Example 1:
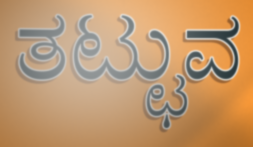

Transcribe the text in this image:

ತಟ್ಟುವ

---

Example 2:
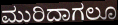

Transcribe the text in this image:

ಮುರಿದಾಗಲೂ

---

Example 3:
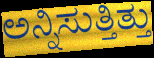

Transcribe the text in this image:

ಅನ್ನಿಸುತ್ತಿತ್ತು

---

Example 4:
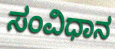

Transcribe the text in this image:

ಸಂವಿಧಾನ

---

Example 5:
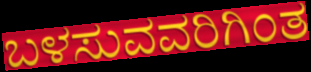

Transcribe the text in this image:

ಬಳಸುವವರಿಗಿಂತ